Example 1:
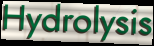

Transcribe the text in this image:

Hydrolysis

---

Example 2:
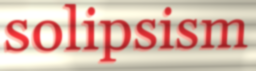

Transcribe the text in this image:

solipsism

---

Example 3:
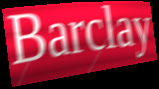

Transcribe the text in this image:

Barclay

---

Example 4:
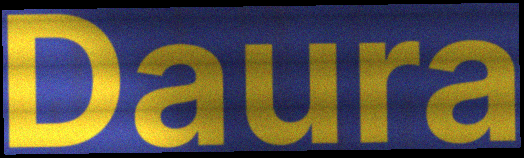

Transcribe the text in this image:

Daura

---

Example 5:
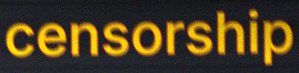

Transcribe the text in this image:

censorship